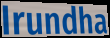
Irundha